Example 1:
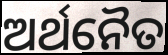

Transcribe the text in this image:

ଅର୍ଥନୈତ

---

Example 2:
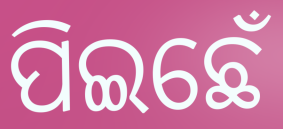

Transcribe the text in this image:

ପିଇଛେଁ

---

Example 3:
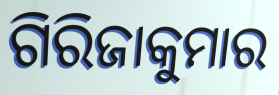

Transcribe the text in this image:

ଗିରିଜାକୁମାର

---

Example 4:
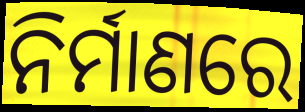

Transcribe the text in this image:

ନିର୍ମାଣରେ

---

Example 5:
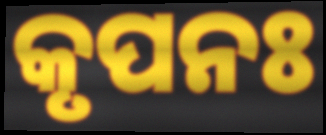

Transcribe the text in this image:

କୃପନଃ